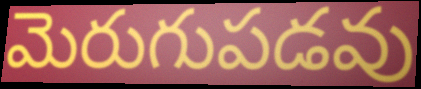
మెరుగుపడవు